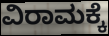
ವಿರಾಮಕ್ಕೆ